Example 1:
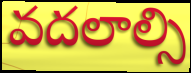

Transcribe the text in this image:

వదలాల్సి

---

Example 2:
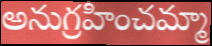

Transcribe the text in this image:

అనుగ్రహించమ్మా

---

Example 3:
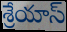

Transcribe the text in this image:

శ్రేయాస్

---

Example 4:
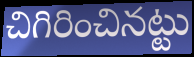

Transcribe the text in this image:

చిగిరించినట్టు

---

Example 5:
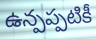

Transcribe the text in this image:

ఉన్పప్పటికీ